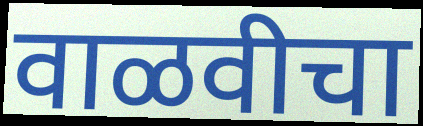
वाळवीचा